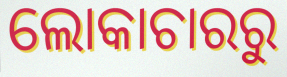
ଲୋକାଚାରରୁ